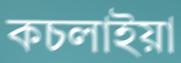
কচলাইয়া